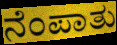
ನೆಂಪಾತು